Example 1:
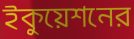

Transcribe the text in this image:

ইকুয়েশনের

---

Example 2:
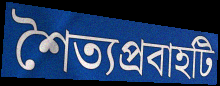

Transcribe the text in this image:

শৈত্যপ্রবাহটি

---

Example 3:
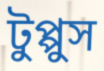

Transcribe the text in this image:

টুপ্পুস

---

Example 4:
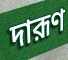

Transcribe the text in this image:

দারূণ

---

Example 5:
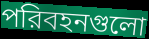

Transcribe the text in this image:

পরিবহনগুলো